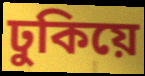
ঢুকিয়ে